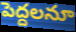
పెద్దలనూ